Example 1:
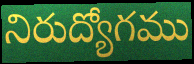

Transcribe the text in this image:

నిరుద్యోగము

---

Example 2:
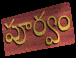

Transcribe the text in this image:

పూర్వం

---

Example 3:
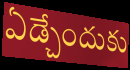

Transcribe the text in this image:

ఏడ్చేందుకు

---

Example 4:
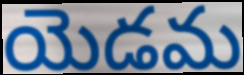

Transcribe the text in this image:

యెడమ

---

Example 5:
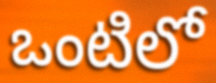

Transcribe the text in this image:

ఒంటిలో